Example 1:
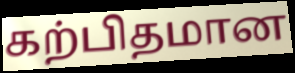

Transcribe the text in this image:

கற்பிதமான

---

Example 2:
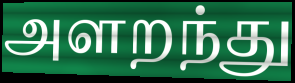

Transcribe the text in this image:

அளறந்து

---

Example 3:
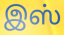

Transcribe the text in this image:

இஸ்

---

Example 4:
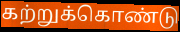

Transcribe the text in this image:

கற்றுக்கொண்டு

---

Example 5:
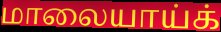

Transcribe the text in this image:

மாலையாய்க்